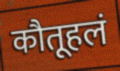
कौतूहलं